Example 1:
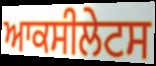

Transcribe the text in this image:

ਆਕਸੀਲੇਟਸ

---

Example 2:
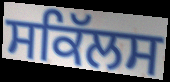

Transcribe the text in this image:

ਸਕਿੱਲਸ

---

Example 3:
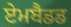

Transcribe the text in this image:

ਏਮਬੈਡਡ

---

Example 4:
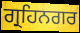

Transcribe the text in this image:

ਗ੍ਰਹਿਨਗਰ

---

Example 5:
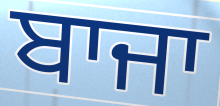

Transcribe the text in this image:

ਬਾਜਾ